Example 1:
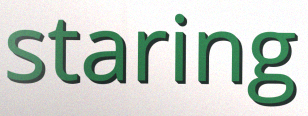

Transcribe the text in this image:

staring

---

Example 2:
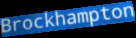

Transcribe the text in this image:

Brockhampton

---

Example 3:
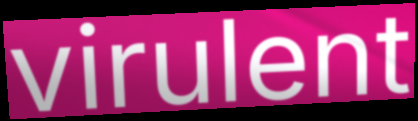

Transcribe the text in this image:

virulent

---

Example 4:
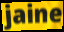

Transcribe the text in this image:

jaine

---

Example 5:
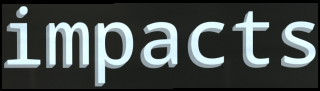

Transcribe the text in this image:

impacts